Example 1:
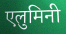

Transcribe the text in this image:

एलुमिनी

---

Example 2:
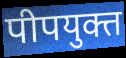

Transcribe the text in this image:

पीपयुक्त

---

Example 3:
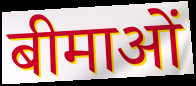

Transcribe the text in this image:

बीमाओं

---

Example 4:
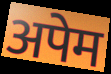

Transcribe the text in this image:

अपेम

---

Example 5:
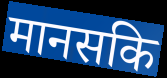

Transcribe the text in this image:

मानसकि